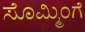
ಸೊಮ್ಮಿಂಗೆ